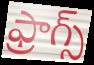
ఫ్రాగ్స్